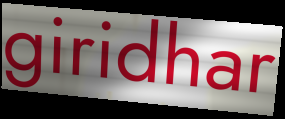
giridhar